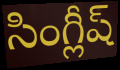
సింగ్లీష్